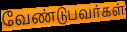
வேண்டுபவர்கள்